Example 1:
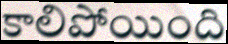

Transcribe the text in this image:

కాలిపోయింది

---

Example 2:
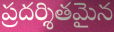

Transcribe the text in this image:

ప్రదర్శితమైన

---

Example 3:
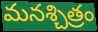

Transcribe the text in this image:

మనశ్చిత్రం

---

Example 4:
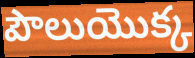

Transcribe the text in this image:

పౌలుయొక్క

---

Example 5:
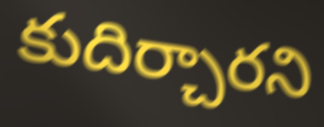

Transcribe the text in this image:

కుదిర్చారని